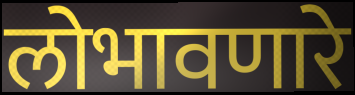
लोभावणारे